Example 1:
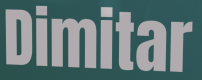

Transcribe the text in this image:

Dimitar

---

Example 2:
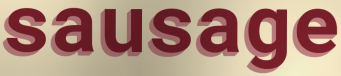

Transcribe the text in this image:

sausage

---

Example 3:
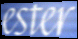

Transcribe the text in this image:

ester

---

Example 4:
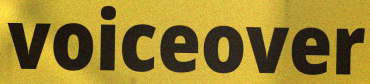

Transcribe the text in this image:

voiceover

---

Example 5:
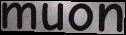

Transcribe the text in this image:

muon